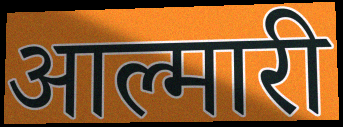
आल्मारी